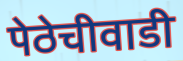
पेठेचीवाडी